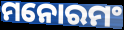
ମନୋରମଂ